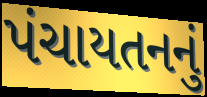
પંચાયતનનું